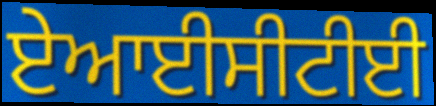
ਏਆਈਸੀਟੀਈ